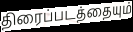
திரைப்படத்தையும்